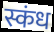
स्कंध